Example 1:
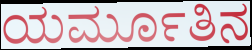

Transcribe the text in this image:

ಯರ್ಮೂತಿನ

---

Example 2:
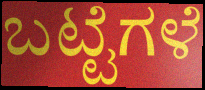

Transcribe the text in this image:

ಬಟ್ಟೆಗಳೆ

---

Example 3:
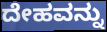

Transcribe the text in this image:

ದೇಹವನ್ನು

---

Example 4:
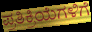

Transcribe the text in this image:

ಪ್ರತಿಕ್ರಿಯೆಗಳಿಗೆ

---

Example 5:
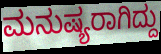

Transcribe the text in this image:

ಮನುಷ್ಯರಾಗಿದ್ದು